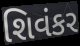
શિવંકર